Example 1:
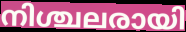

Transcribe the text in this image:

നിശ്ചലരായി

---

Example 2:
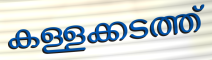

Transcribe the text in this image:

കള്ളക്കടത്ത്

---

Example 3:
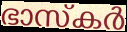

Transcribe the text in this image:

ഭാസ്‌കർ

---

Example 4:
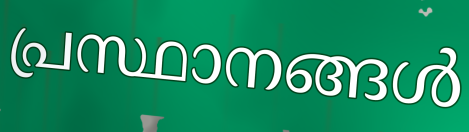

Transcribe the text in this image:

പ്രസ്ഥാനങ്ങൾ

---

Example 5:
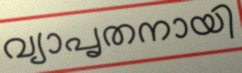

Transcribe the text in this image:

വ്യാപൃതനായി